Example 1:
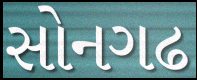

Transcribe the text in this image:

સોનગઢ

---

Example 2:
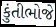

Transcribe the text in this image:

કુંતીભોજે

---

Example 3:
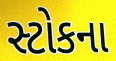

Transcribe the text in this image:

સ્ટોકના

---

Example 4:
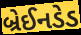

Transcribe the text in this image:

બ્રેઈનડેડ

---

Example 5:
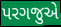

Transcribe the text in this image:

પરગજુએ